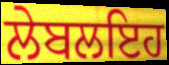
ਲੇਬਲਇਹ